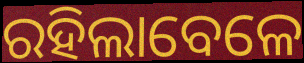
ରହିଲାବେଳେ